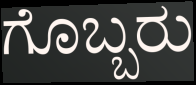
ಗೊಬ್ಬರು